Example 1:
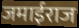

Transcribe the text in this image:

जमाईराज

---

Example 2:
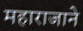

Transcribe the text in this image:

महाराजाने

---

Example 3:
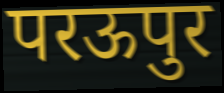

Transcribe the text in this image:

परऊपुर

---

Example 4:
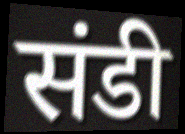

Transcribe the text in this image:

संडी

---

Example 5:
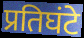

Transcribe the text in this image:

प्रतिघंटे